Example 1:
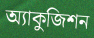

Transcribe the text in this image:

অ্যাকুজিশন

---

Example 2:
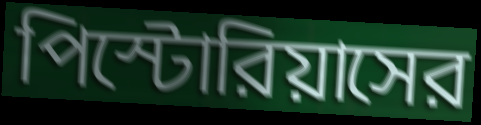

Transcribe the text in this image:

পিস্টোরিয়াসের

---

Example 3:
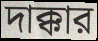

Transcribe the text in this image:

দাক্কার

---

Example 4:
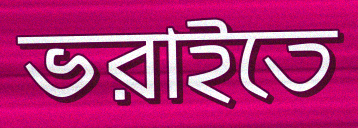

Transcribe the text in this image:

ভরাইতে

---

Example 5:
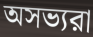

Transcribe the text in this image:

অসভ্যরা